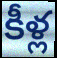
కీళ్ల